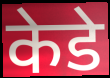
केडे